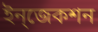
ইন্‌জেকশন